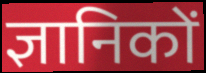
ज्ञानिकों